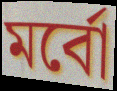
মর্বো